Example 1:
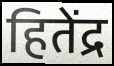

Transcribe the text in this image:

हितेंद्र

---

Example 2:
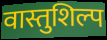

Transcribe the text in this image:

वास्तुशिल्प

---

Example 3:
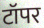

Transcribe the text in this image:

टॉपर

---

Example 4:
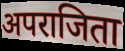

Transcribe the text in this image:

अपराजिता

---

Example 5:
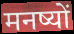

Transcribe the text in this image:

मनष्यों